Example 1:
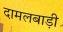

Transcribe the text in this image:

दामलबाड़ी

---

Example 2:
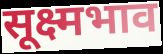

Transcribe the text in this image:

सूक्ष्मभाव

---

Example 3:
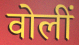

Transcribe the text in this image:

वोलीं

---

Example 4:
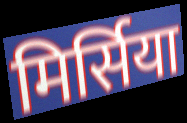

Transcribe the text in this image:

मिर्सिया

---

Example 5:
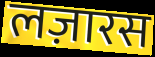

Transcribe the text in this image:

लज़ारस